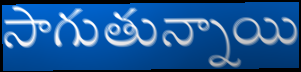
సాగుతున్నాయి